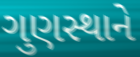
ગુણસ્થાને